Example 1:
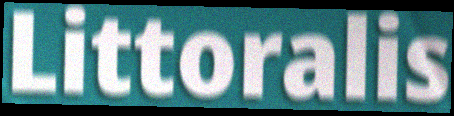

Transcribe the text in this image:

Littoralis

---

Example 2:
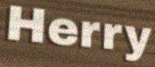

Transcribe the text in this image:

Herry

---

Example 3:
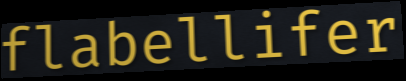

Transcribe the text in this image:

flabellifer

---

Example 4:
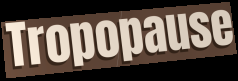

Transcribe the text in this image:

Tropopause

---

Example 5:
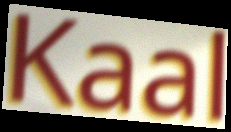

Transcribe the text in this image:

Kaal